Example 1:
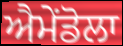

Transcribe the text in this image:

ਐਮੇਂਡੋਲਾ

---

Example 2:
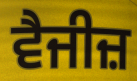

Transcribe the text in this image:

ਵੈਜੀਜ਼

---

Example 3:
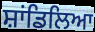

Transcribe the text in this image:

ਸ਼ਾਂਡਿਲਿਆ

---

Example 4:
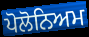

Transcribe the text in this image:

ਪੋਲੋਨਿਅਮ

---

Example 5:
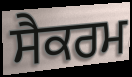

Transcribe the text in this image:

ਸੈਕਰਮ